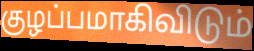
குழப்பமாகிவிடும்